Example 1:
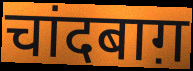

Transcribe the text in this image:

चांदबाग़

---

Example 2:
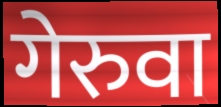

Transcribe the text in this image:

गेरुवा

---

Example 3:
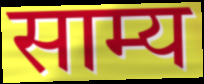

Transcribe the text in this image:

साम्‍य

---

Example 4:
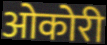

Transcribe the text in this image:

ओकोरी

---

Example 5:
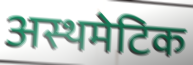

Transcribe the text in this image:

अस्थमेटिक